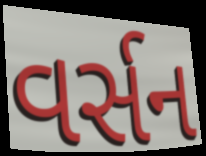
વર્સન